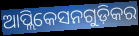
ଆପ୍ଲିକେସନଗୁଡ଼ିକର